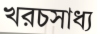
খরচসাধ্য